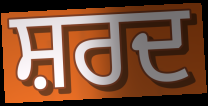
ਸ਼ਰਦ